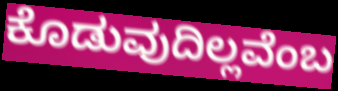
ಕೊಡುವುದಿಲ್ಲವೆಂಬ